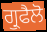
ਗ੍ਰੁਫੈਲੋ